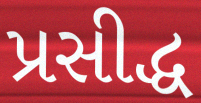
પ્રસીદ્ધ